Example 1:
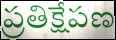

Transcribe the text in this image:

ప్రతిక్షేపణ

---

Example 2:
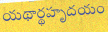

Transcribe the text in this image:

యథార్థహృదయం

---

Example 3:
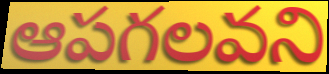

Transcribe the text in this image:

ఆపగలవని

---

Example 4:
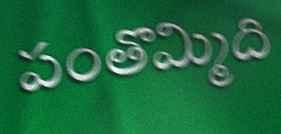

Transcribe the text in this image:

పంతొమ్మిది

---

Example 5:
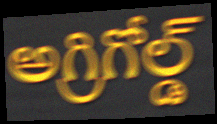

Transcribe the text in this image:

అగ్రిగోల్డ్